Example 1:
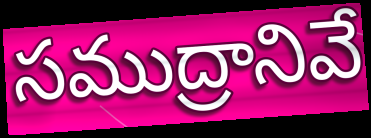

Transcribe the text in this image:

సముద్రానివే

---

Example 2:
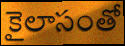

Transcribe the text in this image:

కైలాసంతో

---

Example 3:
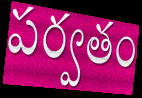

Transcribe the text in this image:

పర్వతం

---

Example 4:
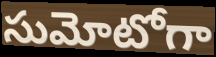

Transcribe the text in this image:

సుమోటోగా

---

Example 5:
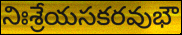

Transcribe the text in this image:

నిఃశ్రేయసకరవుభౌ